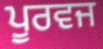
ਪੂਰਵਜ